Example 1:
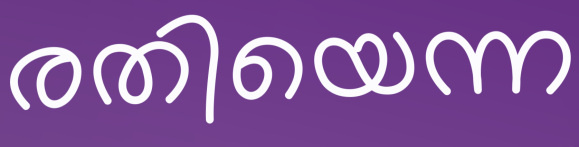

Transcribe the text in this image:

രതിയെന്ന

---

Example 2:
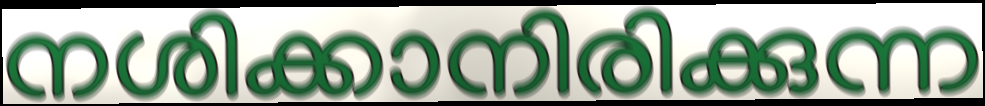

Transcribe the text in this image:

നശിക്കാനിരിക്കുന്ന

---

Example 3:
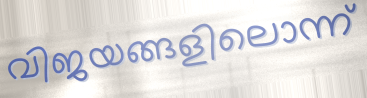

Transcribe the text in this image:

വിജയങ്ങളിലൊന്ന്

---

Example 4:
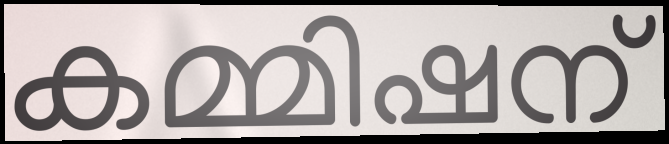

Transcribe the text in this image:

കമ്മിഷന്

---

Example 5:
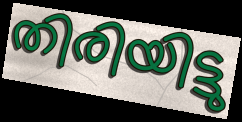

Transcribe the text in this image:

തിരിയിട്ടു